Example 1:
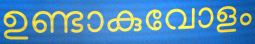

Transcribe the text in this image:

ഉണ്ടാകുവോളം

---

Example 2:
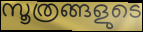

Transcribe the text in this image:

സൂത്രങ്ങളുടെ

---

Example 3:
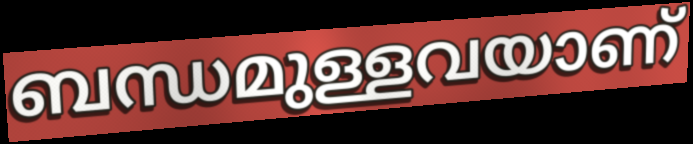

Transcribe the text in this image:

ബന്ധമുള്ളവയാണ്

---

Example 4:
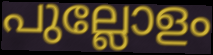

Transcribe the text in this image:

പുല്ലോളം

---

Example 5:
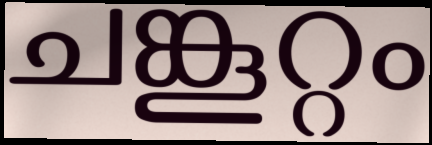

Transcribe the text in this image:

ചങ്കൂറ്റം